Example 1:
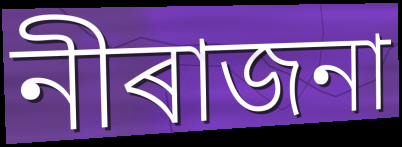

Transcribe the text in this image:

নীৰাজনা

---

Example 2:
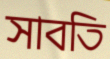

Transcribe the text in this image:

সাবতি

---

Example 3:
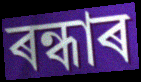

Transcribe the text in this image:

ৰন্ধাৰ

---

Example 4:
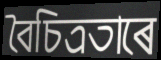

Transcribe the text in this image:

বৈচিত্ৰতাৰে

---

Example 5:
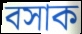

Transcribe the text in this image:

বসাক